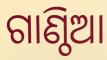
ଗାଣ୍ଠିଆ